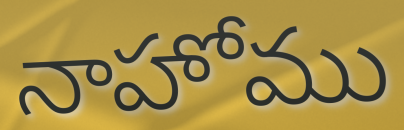
నాహోము